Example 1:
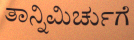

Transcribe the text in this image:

ತಾನ್ನಿಮಿರ್ಚುಗೆ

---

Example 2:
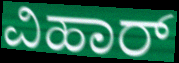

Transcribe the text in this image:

ವಿಹಾರ್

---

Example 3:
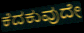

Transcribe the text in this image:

ಕೆದಕುವುದೇ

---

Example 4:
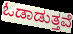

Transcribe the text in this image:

ಓಡಾಡುತ್ತವೆ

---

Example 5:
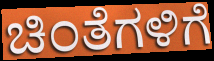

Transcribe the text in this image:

ಚಿಂತೆಗಳಿಗೆ